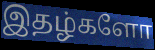
இதழ்களோ